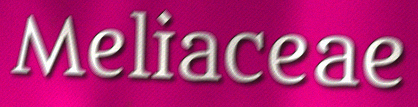
Meliaceae